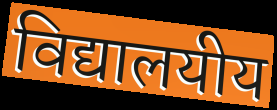
विद्यालयीय